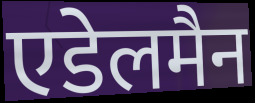
एडेलमैन